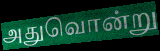
அதுவொன்று